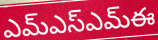
ఎమ్ఎస్ఎమ్ఈ